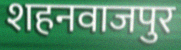
शहनवाजपुर